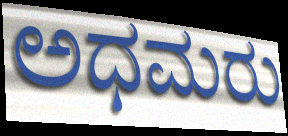
ಅಧಮರು